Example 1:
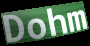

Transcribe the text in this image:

Dohm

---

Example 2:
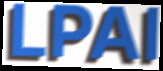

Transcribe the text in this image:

LPAI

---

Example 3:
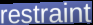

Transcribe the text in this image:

restraint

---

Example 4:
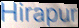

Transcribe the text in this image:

Hirapur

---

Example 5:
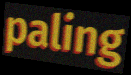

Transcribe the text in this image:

paling